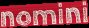
nomini